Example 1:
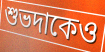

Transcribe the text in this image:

শুভদাকেও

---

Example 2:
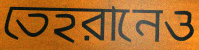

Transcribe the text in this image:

তেহরানেও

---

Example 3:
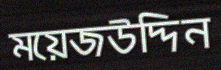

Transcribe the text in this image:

ময়েজউদ্দিন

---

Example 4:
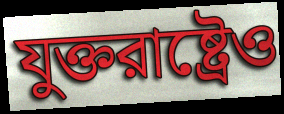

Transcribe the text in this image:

যুক্তরাষ্ট্রেও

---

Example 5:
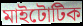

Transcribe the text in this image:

মাইটোটিক